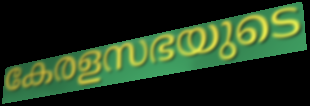
കേരളസഭയുടെ